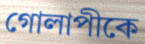
গোলাপীকে